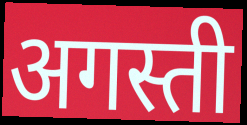
अगस्ती